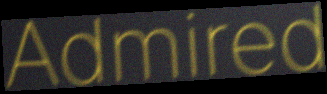
Admired